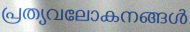
പ്രത്യവലോകനങ്ങൾ